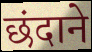
छंदाने